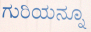
ಗುರಿಯನ್ನೂ